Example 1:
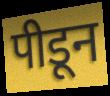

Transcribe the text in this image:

पीडून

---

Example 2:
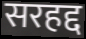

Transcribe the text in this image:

सरहद्द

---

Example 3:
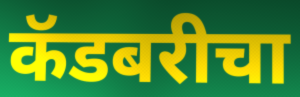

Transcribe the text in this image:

कॅडबरीचा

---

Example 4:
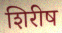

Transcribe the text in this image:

शिरीष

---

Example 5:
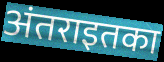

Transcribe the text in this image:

अंतराइतका